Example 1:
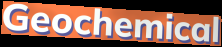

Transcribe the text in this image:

Geochemical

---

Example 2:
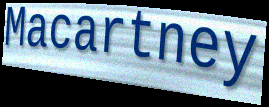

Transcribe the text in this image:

Macartney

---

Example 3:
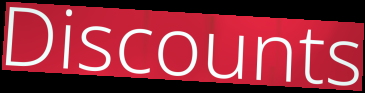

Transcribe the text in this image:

Discounts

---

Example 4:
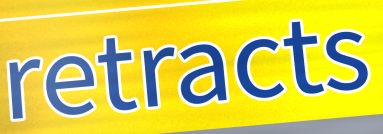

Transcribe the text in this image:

retracts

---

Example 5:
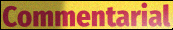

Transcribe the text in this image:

Commentarial